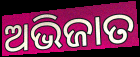
ଅଭିଜାତ